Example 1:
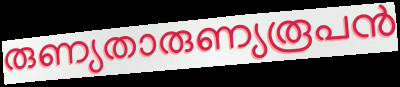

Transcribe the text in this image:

രുണ്യതാരുണ്യരൂപൻ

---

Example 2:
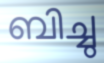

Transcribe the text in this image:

ബിച്ചു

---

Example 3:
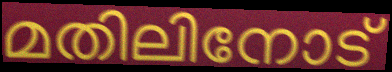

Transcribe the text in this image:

മതിലിനോട്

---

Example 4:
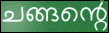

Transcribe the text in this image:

ചങ്ങന്റെ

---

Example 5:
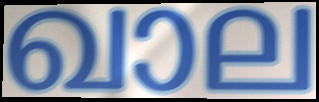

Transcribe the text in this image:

ഖാല